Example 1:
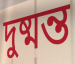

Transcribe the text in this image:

দুষ্মন্ত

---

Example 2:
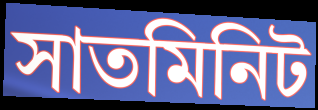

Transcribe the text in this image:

সাতমিনিট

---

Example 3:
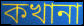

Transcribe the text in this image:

কখানা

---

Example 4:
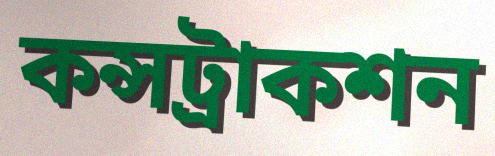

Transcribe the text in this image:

কন্সট্রাকশন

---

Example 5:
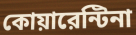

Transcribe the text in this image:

কোয়ারেন্টিনা